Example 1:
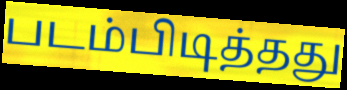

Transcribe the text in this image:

படம்பிடித்தது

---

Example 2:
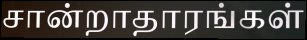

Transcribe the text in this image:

சான்றாதாரங்கள்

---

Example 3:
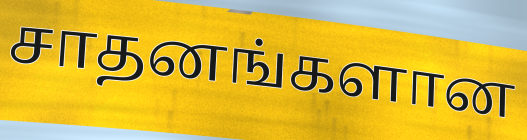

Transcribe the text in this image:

சாதனங்களான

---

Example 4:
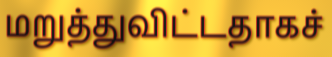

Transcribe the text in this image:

மறுத்துவிட்டதாகச்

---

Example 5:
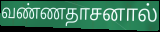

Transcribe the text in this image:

வண்ணதாசனால்